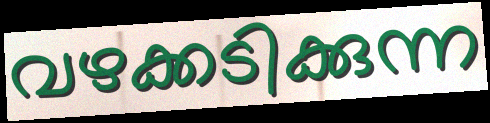
വഴക്കടിക്കുന്ന